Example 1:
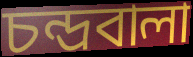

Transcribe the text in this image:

চন্দ্রবালা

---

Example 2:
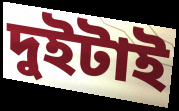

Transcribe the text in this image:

দুইটাই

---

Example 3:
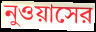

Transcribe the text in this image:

নুওয়াসের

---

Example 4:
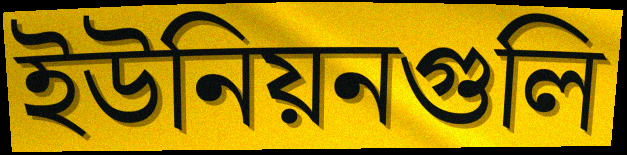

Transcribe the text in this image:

ইউনিয়নগুলি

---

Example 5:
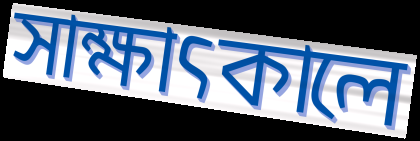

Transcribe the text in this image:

সাক্ষাৎকালে